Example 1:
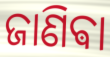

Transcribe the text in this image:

ଜାଣିଵା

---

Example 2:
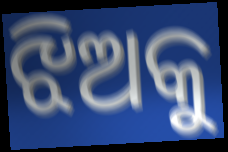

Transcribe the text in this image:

ଝିଅକୁ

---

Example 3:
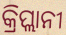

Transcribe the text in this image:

କ୍ରିପ୍ଲାନୀ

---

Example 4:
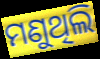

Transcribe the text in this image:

ମଣୁଥିଲି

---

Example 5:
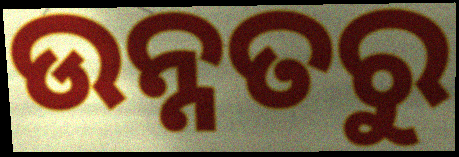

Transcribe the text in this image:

ଉନ୍ନତରୁ